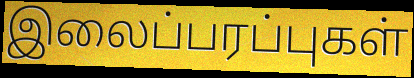
இலைப்பரப்புகள்